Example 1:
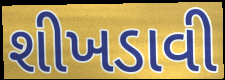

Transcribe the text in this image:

શીખડાવી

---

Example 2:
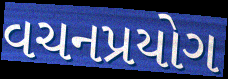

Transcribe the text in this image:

વચનપ્રયોગ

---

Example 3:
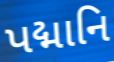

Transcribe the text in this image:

પદ્માનિ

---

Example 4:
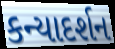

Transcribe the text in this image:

કન્યાદર્શન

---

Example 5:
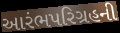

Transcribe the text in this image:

આરંભપરિગ્રહની